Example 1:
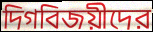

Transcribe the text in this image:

দিগবিজয়ীদের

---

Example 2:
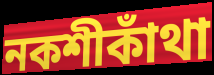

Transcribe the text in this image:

নকশীকাঁথা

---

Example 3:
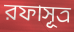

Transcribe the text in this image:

রফাসূত্র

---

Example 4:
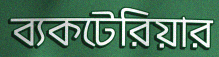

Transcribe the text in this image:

ব্যকটেরিয়ার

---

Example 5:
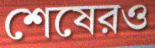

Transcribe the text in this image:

শেষেরও